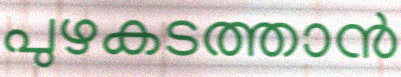
പുഴകടത്താൻ